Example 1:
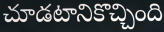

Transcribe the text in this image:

చూడటానికొచ్చింది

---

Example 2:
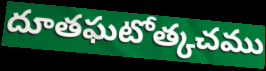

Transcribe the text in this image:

దూతఘటోత్కచము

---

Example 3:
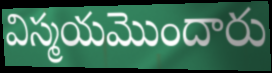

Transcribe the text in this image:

విస్మయమొందారు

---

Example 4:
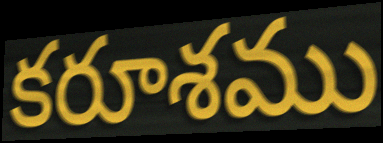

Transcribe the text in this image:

కరూశము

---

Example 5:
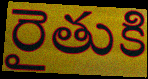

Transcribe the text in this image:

రైతుకి